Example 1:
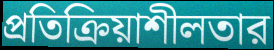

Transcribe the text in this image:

প্রতিক্রিয়াশীলতার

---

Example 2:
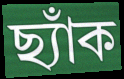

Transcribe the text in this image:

ছ্যাঁক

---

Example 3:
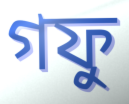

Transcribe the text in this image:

গফু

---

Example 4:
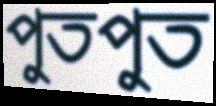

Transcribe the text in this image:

পুতপুত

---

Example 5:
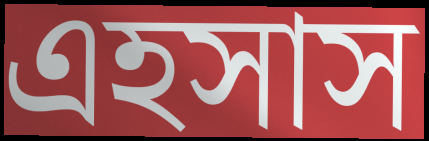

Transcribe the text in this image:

এহসাস